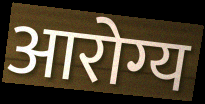
आरोग्य